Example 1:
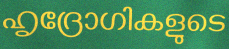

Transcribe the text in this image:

ഹൃദ്രോഗികളുടെ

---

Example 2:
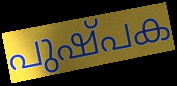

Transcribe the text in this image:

പുഷ്പക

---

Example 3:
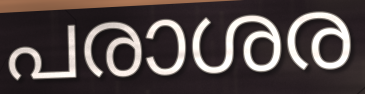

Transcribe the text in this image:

പരാശര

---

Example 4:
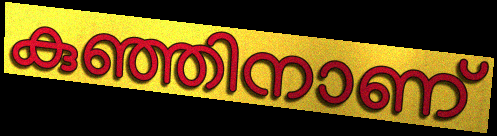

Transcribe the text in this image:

കുഞ്ഞിനാണ്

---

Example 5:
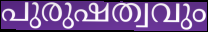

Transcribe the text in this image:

പുരുഷത്വവും